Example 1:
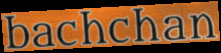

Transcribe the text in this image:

bachchan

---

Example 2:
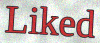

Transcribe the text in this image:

Liked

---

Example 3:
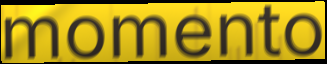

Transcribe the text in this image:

momento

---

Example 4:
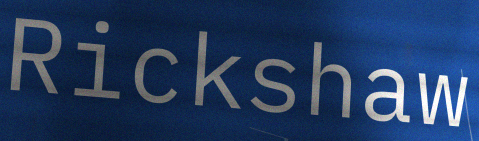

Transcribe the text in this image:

Rickshaw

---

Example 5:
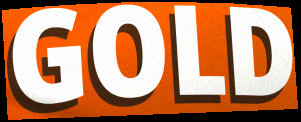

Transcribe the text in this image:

GOLD